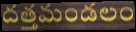
దత్తమండలం